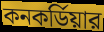
কনকর্ডিয়ার